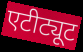
एटीट्यूट